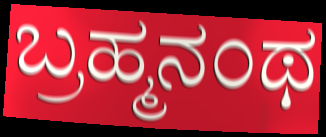
ಬ್ರಹ್ಮನಂಥ